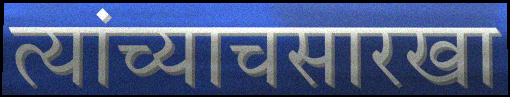
त्यांच्याचसारखा